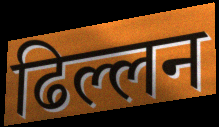
ढिल्लन